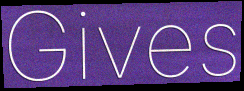
Gives